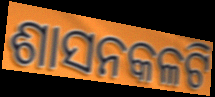
ଶାସନକଳଟି